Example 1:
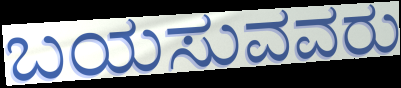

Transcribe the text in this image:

ಬಯಸುವವರು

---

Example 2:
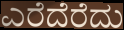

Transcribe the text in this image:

ಎರೆದೆರೆದು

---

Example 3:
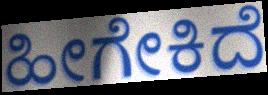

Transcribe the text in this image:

ಹೀಗೇಕಿದೆ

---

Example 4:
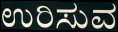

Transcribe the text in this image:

ಉರಿಸುವ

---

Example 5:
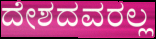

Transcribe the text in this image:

ದೇಶದವರಲ್ಲ